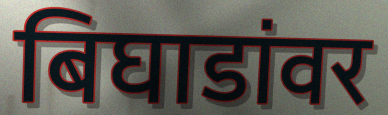
बिघाडांवर